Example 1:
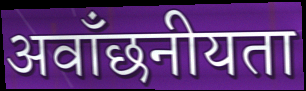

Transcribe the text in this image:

अवाँछनीयता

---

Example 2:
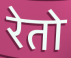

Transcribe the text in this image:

रेतो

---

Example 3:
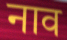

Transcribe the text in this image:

नाव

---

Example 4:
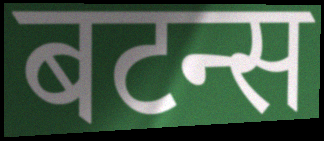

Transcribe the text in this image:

बटन्स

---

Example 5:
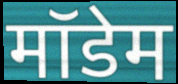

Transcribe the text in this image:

मॉडेम